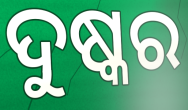
ଦୁଷ୍କର